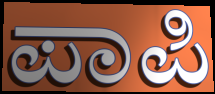
ಪಾಪಿ